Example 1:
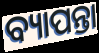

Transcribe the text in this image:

ବ୍ୟାପନ୍ତା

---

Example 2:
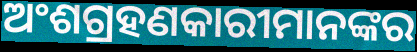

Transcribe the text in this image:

ଅଂଶଗ୍ରହଣକାରୀମାନଙ୍କର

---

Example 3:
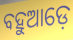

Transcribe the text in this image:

ବହୁଆଡ଼େ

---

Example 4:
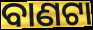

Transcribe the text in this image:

ବାଣଟା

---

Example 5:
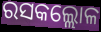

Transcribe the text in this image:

ରସକଲ୍ଲୋଳ